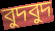
বুদবুদ